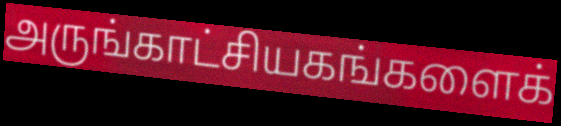
அருங்காட்சியகங்களைக்